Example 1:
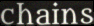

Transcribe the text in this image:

chains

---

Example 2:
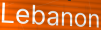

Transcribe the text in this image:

Lebanon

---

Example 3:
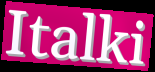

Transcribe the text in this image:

Italki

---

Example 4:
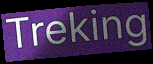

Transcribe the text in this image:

Treking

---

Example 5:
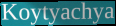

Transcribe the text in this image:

Koytyachya